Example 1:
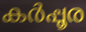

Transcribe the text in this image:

കർപ്പൂര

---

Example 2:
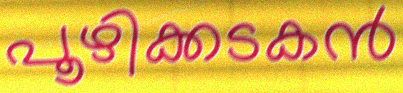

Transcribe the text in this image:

പൂഴിക്കടകൻ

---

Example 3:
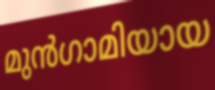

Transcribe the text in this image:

മുൻഗാമിയായ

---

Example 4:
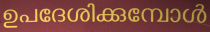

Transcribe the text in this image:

ഉപദേശിക്കുമ്പോൾ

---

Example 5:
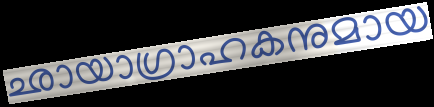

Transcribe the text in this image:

ഛായാഗ്രാഹകനുമായ